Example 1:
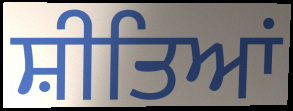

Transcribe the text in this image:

ਸ਼ੀਤਿਆਂ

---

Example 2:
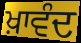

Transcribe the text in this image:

ਖ਼ਾਵੰਦ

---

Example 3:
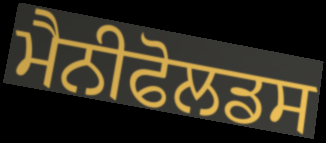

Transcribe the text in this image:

ਮੈਨੀਫੋਲਡਸ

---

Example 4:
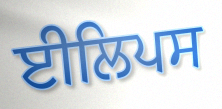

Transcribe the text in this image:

ਈਲਿਪਸ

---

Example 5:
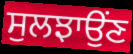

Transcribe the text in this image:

ਸੁਲਝਾਉਂਣ